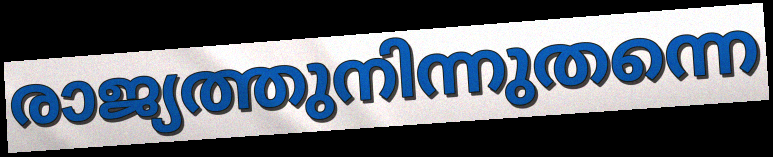
രാജ്യത്തുനിന്നുതന്നെ